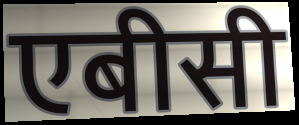
एबीसी